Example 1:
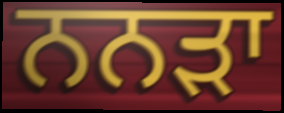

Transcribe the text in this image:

ਨਨੜਾ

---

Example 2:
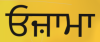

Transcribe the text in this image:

ਓਜ਼ਾਮਾ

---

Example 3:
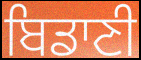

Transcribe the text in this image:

ਬਿਡਾਣੀ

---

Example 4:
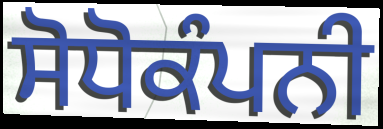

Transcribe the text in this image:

ਸੋਧੋਕੰਪਨੀ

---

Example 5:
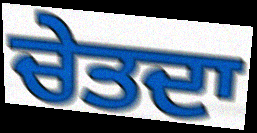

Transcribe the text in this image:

ਚੇਤਦਾ